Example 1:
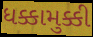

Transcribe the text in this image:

ધક્કામુક્કી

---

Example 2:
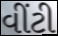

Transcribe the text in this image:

વીંટી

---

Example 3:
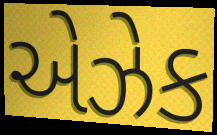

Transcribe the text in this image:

એઝેક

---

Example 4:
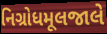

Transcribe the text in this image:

નિગ્રોધમૂલજાલે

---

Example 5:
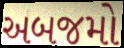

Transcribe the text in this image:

અબજમો